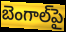
బెంగాల్‌పై